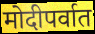
मोदीपर्वात